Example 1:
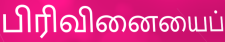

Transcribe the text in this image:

பிரிவினையைப்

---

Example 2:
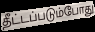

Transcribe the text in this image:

தீட்டப்படும்போது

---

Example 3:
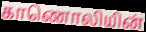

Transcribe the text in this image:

காணொலியின்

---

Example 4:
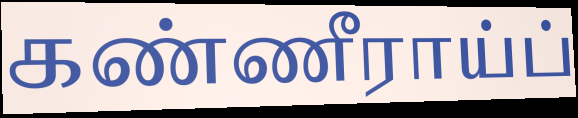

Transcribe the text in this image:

கண்ணீராய்ப்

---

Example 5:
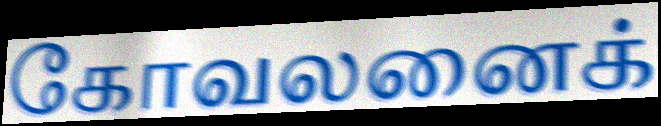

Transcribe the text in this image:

கோவலனைக்